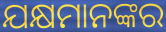
ଯକ୍ଷମାନଙ୍କର